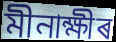
মীনাক্ষীৰ